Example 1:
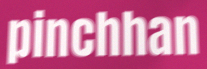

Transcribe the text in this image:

pinchhan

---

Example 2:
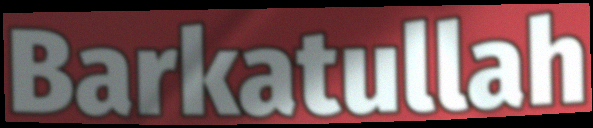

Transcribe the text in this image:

Barkatullah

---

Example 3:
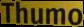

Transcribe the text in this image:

Thumo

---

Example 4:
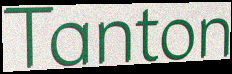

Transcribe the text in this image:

Tanton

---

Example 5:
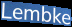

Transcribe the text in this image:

Lembke